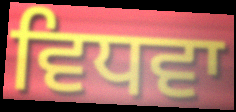
ਵਿਧਵਾ